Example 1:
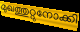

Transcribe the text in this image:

മുഖത്തുറ്റുനോക്കി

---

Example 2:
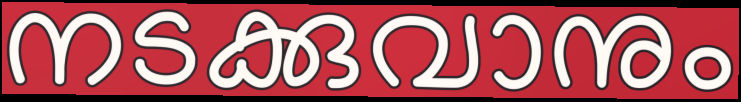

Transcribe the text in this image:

നടക്കുവാനും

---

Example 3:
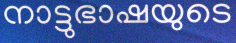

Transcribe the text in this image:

നാട്ടുഭാഷയുടെ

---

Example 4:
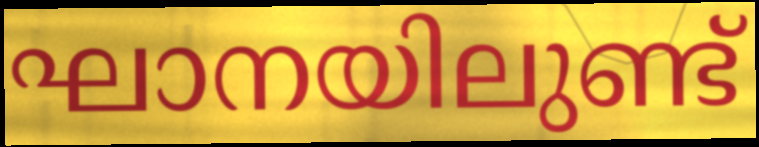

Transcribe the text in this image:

ഘാനയിലുണ്ട്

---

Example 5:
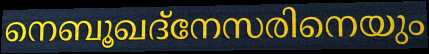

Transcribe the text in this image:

നെബൂഖദ്നേസരിനെയും